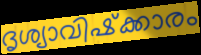
ദൃശ്യാവിഷ്‌ക്കാരം